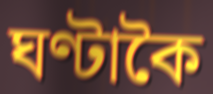
ঘণ্টাকৈ